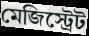
মেজিস্ট্রেট